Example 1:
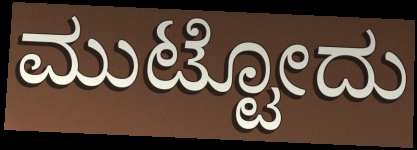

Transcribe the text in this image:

ಮುಟ್ಟೋದು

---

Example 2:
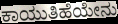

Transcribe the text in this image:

ಕಾಯುತಿಹೆಯೇನು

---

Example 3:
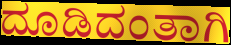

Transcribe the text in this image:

ದೂಡಿದಂತಾಗಿ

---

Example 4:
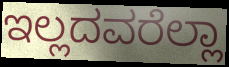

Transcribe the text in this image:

ಇಲ್ಲದವರೆಲ್ಲಾ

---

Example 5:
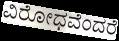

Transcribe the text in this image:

ವಿರೋಧವೆಂದರೆ